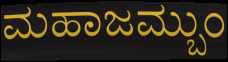
ಮಹಾಜಮ್ಬುಂ